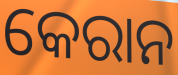
କେରାନ